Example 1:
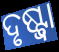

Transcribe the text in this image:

ଦୃଷ୍ଟ୍ବା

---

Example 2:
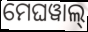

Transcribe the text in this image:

ମେଘୱାଲ୍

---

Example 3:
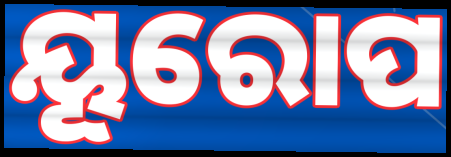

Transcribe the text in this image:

ୟୂରୋପ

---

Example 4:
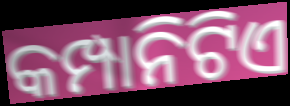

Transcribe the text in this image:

କମ୍ପାନିଟିଏ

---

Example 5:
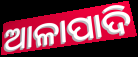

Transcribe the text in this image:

ଆଳାପାଦି